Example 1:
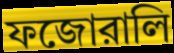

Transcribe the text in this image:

ফজোরালি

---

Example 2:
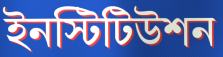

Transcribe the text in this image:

ইনস্টিটিউশন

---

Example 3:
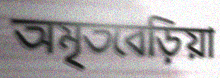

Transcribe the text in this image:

অমৃতবেড়িয়া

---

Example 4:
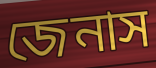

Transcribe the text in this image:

জেনাস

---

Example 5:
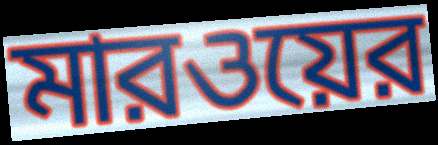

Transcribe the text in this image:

মারওয়ের